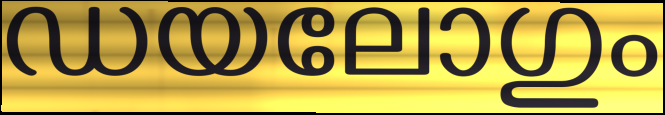
ഡയലോഗും